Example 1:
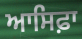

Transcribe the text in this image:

ਆਸਿਫ਼ਾ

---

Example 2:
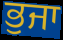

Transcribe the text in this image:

ਭੁਜਾ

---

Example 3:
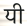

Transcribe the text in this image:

ਧੀ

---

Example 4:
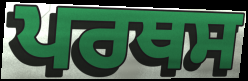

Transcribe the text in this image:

ਪਰਥਸ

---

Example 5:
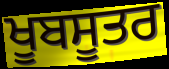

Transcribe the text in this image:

ਖੂਬਸੂਤਰ